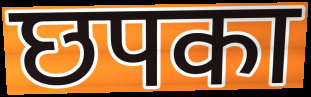
छपका